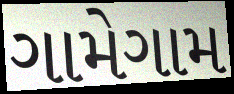
ગામેગામ